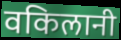
वकिलानी